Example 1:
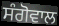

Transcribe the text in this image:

ਸੰਗੋਵਾਲ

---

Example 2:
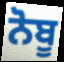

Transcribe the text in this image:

ਨੋਬੂ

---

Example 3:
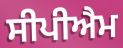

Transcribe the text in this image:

ਸੀਪੀਐਮ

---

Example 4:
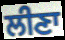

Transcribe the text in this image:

ਲੀਣਾ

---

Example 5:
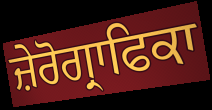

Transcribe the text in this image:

ਜ਼ੇਰੋਗ੍ਰਾਫਿਕਾ